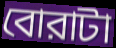
বোরাটা